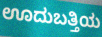
ಊದುಬತ್ತಿಯ